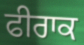
ਫੀਰਾਕ